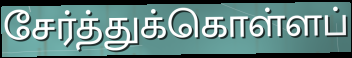
சேர்த்துக்கொள்ளப்